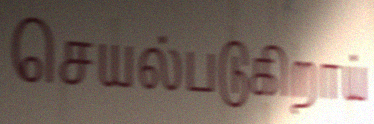
செயல்படுகிறாய்